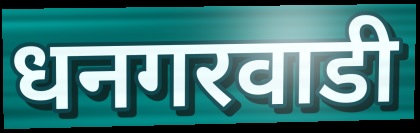
धनगरवाडी